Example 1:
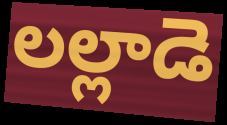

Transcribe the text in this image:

లల్లాడె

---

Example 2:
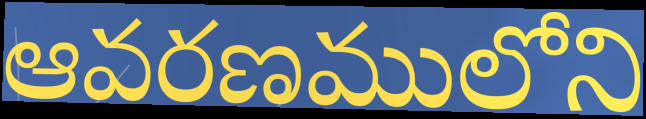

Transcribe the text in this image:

ఆవరణములోని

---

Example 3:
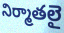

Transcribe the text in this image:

నిర్మాతలై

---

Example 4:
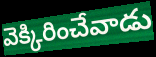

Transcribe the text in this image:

వెక్కిరించేవాడు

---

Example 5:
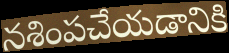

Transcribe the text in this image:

నశింపచేయడానికి